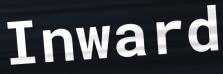
Inward